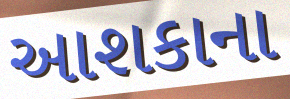
આશકાના